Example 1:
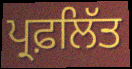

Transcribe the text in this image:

ਪ੍ਰਫ਼ਲਿੱਤ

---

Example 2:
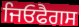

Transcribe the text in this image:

ਜਿਓਫੈਗਸ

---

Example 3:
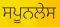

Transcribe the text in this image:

ਸਪੂਨਲੇਸ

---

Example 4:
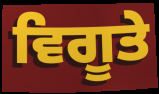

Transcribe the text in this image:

ਵਿਗੂਤੇ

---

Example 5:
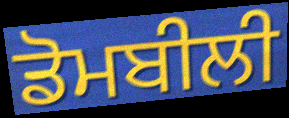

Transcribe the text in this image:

ਡੋਮਬੀਲੀ